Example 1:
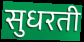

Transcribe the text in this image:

सुधरती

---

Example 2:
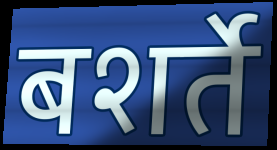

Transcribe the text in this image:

बशर्ते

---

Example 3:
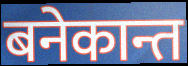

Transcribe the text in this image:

बनेकान्त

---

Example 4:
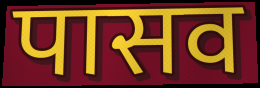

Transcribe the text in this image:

पासव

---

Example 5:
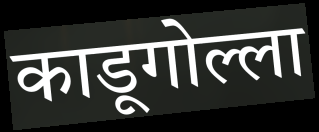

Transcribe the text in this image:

काडूगोल्ला